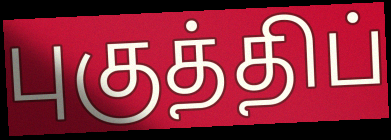
புகுத்திப்